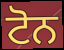
ਟੋਨ